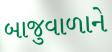
બાજુવાળાને